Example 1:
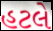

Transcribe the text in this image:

હટલે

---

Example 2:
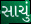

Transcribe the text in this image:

સાચું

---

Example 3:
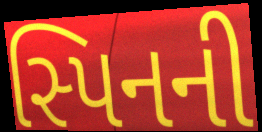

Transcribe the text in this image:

સ્પિનની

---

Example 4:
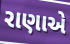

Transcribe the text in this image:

રાણાએ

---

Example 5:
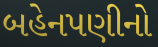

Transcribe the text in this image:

બહેનપણીનો